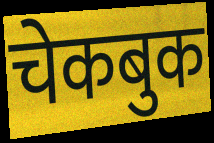
चेकबुक